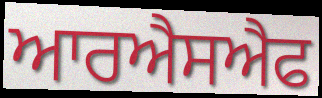
ਆਰਐਸਐਫ